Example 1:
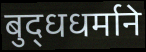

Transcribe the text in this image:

बुद्धधर्माने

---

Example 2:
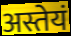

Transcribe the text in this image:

अस्तेयं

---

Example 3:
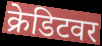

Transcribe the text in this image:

क्रेडिटवर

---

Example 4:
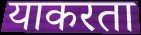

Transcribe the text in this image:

याकरता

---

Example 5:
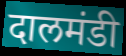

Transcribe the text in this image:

दालमंडी